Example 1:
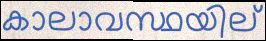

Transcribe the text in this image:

കാലാവസ്ഥയില്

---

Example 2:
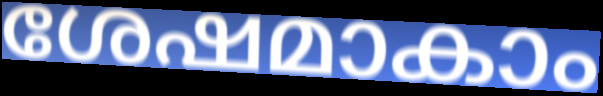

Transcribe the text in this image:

ശേഷമാകാം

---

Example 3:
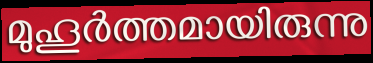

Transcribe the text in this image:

മുഹൂർത്തമായിരുന്നു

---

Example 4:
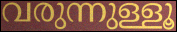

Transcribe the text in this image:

വരുന്നുള്ളൂ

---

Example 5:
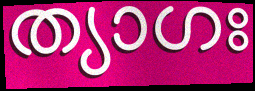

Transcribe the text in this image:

ത്യാഗഃ